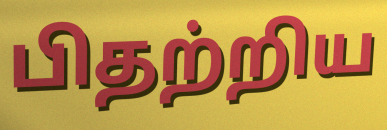
பிதற்றிய